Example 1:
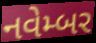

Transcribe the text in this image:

નવેમ્બર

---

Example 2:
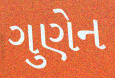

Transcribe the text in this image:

ગુણેન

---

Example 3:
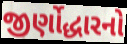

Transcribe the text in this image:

જીર્ણોદ્ધારનો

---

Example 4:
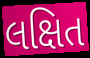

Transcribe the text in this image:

લક્ષિત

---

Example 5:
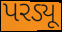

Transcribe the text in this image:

પરડ્યૂ